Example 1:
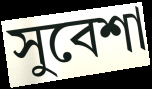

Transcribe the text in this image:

সুবেশা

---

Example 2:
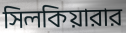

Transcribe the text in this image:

সিলকিয়ারার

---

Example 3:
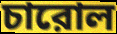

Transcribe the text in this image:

চারোল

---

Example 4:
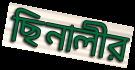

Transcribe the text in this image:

ছিনালীর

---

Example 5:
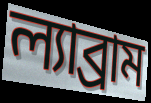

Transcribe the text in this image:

ল্যাব্রাম